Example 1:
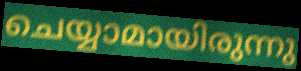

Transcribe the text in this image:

ചെയ്യാമായിരുന്നു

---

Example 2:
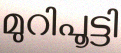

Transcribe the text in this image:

മുറിപൂട്ടി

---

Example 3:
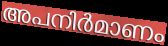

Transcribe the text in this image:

അപനിർമാണം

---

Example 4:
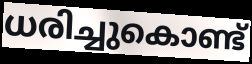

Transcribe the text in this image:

ധരിച്ചുകൊണ്ട്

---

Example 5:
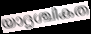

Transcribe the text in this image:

യാദൃശ്ചികത